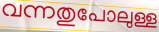
വന്നതുപോലുള്ള